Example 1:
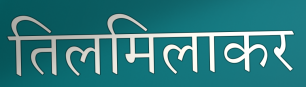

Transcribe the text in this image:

तिलमिलाकर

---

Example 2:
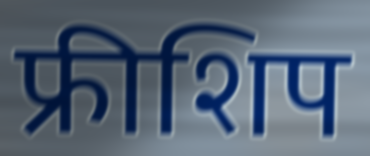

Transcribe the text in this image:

फ्रीशिप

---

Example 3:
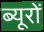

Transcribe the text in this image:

ब्यूरों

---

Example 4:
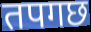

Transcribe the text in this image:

तपगछ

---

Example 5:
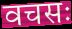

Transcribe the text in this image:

वचसः